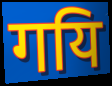
गयि